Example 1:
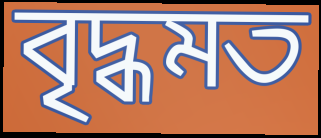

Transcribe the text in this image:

বৃদ্ধমত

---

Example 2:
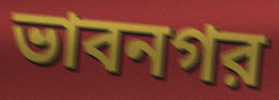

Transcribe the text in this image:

ভাবনগর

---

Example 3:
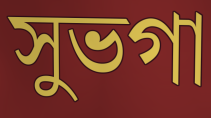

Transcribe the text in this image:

সুভগা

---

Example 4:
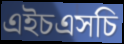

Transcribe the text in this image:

এইচএসচি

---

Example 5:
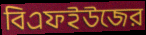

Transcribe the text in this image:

বিএফইউজের